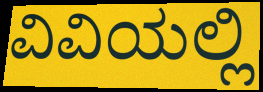
ವಿವಿಯಲ್ಲಿ